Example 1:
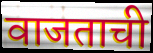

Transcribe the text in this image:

वाजताची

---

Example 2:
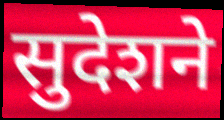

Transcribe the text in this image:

सुदेशने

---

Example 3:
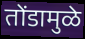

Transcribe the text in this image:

तोंडामुळे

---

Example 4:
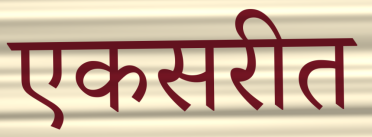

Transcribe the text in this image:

एकसरीत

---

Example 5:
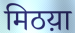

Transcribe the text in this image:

मिठय़ा